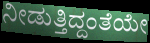
ನೀಡುತ್ತಿದ್ದಂತೆಯೇ